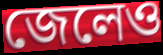
জেলেও